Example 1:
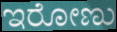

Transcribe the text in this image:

ಇರೋಣು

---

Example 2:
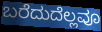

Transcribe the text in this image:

ಬರೆದುದೆಲ್ಲವೂ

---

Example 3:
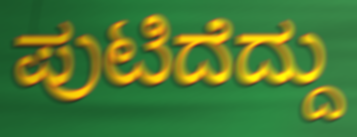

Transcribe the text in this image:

ಪುಟಿದೆದ್ದು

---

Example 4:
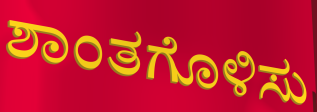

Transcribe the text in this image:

ಶಾಂತಗೊಳಿಸು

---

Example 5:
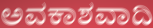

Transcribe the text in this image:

ಅವಕಾಶವಾದಿ